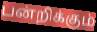
பன்றிக்கும்